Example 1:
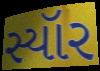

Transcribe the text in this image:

સ્યૉર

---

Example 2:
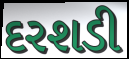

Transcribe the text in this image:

દરશડી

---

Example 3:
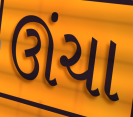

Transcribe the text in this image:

ઊંચા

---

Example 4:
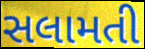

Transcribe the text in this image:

સલામતી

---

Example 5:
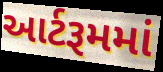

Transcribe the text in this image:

આર્ટરૂમમાં